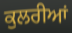
ਕੁਲਰੀਆਂ